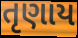
તૃણાય